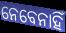
ନେବେନାହିଁ